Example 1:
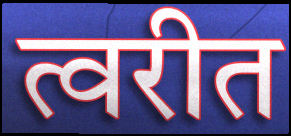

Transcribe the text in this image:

त्वरीत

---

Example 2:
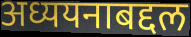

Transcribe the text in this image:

अध्ययनाबद्दल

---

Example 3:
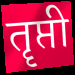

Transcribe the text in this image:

तॄप्ती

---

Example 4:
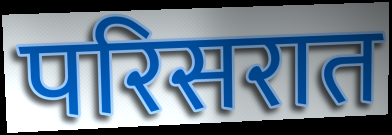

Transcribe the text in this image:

परिसरात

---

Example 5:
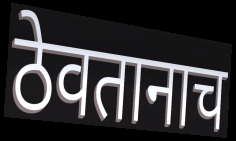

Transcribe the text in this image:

ठेवतानाच